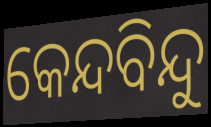
କେନ୍ଦବିନ୍ଦୁ